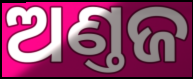
ଅଣ୍ତଜ